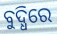
ବୁଦ୍ଧିରେ